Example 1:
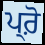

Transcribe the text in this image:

ਪ੍ਰ਼ੋ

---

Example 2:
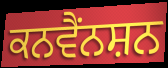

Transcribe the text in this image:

ਕਨਵੈਂਨਸ਼ਨ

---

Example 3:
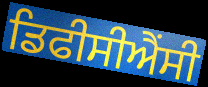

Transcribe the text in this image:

ਡਿਫੀਸੀਐਂਸੀ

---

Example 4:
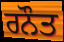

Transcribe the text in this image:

ਰਨੌਤ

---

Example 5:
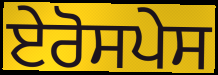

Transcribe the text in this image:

ਏਰੋਸਪੇਸ